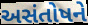
અસંતોષને